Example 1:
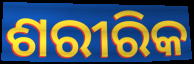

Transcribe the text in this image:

ଶରୀରିକ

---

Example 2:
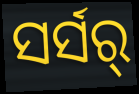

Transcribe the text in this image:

ସର୍ସର୍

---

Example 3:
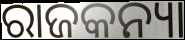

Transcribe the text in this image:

ରାଜକନ୍ୟା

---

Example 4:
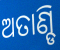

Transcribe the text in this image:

ଅତାଣ୍ଡି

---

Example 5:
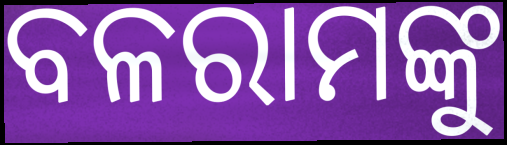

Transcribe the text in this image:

ବଳରାମଙ୍କୁ